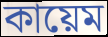
কায়েম